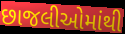
છાજલીઓમાંથી